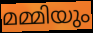
മമ്മിയും